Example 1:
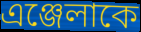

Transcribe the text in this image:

এঞ্জেলাকে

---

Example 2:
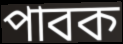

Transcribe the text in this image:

পাবক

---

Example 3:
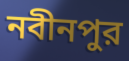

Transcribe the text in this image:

নবীনপুর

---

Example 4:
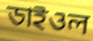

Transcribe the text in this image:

ডাইওল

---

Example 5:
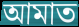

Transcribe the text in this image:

আমাত